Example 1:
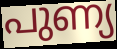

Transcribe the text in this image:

പുണ്യ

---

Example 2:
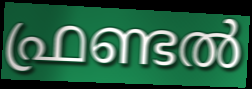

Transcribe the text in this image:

ഫ്രണ്ടൽ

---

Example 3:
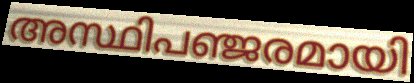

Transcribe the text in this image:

അസ്ഥിപഞ്ജരമായി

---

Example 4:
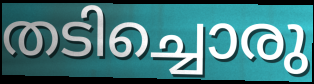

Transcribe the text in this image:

തടിച്ചൊരു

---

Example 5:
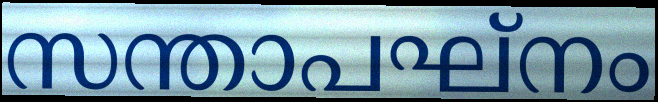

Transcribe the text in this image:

സന്താപഘ്നം